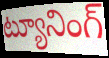
ట్యూనింగ్